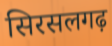
सिरसलगढ़